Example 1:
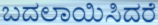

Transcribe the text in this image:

ಬದಲಾಯಿಸಿದರೆ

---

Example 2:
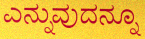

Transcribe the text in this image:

ಎನ್ನುವುದನ್ನೂ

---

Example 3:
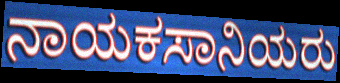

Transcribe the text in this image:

ನಾಯಕಸಾನಿಯರು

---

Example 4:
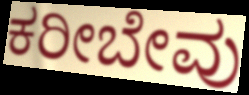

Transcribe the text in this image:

ಕರೀಬೇವು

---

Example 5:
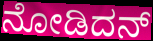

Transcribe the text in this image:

ನೋಡಿದನ್